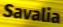
Savalia